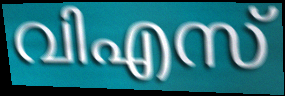
വിഎസ്